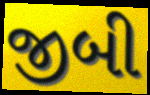
જીબી